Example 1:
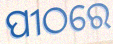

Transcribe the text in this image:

ପୀଠରେ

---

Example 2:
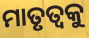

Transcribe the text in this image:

ମାତୃତ୍ବକୁ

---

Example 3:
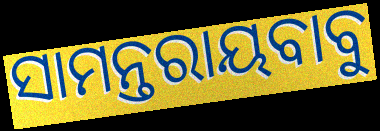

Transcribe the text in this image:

ସାମନ୍ତରାୟବାବୁ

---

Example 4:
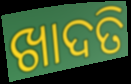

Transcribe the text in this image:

ଖାଦତି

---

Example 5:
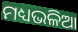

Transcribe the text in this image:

ମଧ୍ୟଭଳିଆ